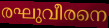
രഘുവീരനെ